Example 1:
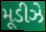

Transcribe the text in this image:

મૂડીઝે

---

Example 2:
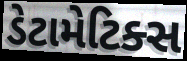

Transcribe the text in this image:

ડેટામેટિક્સ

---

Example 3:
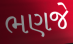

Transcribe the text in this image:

ભણજે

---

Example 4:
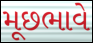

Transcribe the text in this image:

મૂછભાવે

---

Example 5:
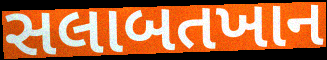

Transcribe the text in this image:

સલાબતખાન